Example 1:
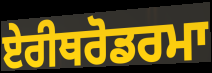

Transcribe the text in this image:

ਏਰੀਥਰੋਡਰਮਾ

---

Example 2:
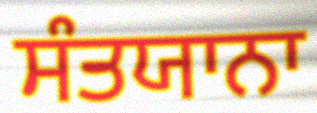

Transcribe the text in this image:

ਸੰਤਯਾਨਾ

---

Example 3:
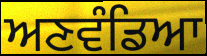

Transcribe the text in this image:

ਅਣਵੰਡਿਆ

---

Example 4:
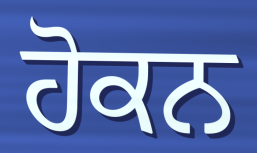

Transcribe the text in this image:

ਹੋਕਨ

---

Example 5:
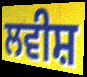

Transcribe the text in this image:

ਲਵੀਸ਼